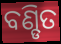
ବଣ୍ଡିତ